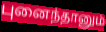
புனைந்தானும்